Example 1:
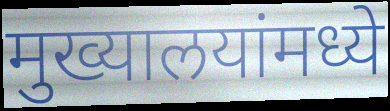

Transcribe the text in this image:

मुख्यालयांमध्ये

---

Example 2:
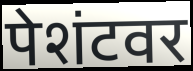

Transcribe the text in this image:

पेशंटवर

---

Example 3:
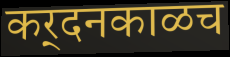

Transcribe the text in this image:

कर्दनकाळच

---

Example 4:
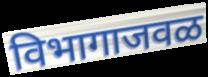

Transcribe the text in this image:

विभागाजवळ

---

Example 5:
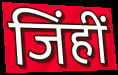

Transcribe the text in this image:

जिंहीं